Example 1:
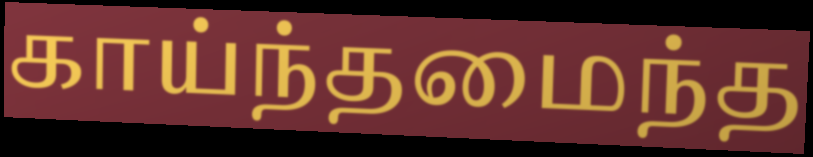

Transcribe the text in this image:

காய்ந்தமைந்த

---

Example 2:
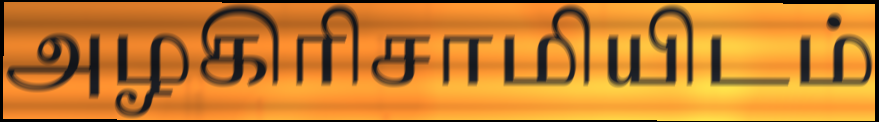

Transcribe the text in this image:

அழகிரிசாமியிடம்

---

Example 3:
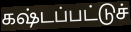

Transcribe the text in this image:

கஷ்டப்பட்டுச்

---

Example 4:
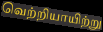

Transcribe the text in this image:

வெற்றியாயிற்று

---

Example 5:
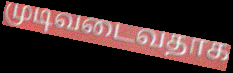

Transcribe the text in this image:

முடிவடைவதாக